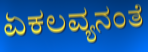
ಏಕಲವ್ಯನಂತೆ